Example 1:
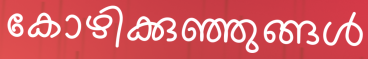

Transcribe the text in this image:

കോഴിക്കുഞ്ഞുങ്ങൾ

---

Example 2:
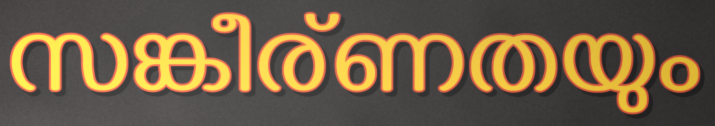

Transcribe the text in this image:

സങ്കീര്ണതയും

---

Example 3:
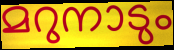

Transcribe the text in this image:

മറുനാടും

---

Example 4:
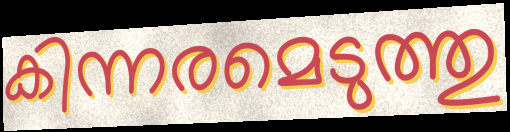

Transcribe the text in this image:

കിന്നരമെടുത്തു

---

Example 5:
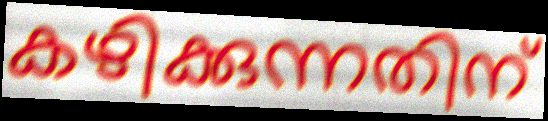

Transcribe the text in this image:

കഴിക്കുന്നതിന്